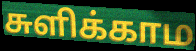
சுளிக்காம